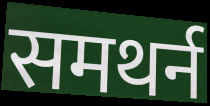
समथर्न